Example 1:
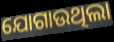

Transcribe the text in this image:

ଯୋଗାଉଥିଲା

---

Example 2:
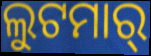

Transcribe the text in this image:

ଲୁଟମାର୍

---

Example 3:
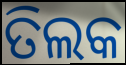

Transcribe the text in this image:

ତିଲକ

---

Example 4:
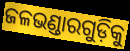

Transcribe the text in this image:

ଜଳଭଣ୍ଡାରଗୁଡ଼ିକୁ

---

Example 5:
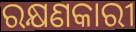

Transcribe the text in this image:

ରକ୍ଷଣକାରୀ